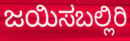
ಜಯಿಸಬಲ್ಲಿರಿ